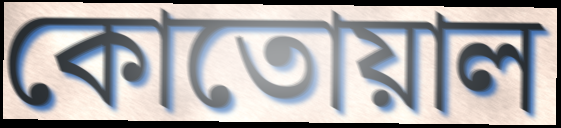
কোতোয়াল